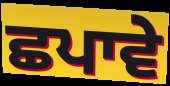
ਛਪਾਵੇ